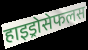
हाइड्रोसेफलस